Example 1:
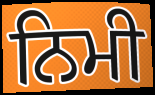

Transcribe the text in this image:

ਨਿਮੀ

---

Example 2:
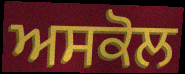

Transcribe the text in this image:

ਅਸਕੋਲ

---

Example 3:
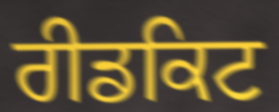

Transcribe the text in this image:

ਰੀਡਕਿਟ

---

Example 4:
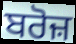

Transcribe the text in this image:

ਬਰੋਜ਼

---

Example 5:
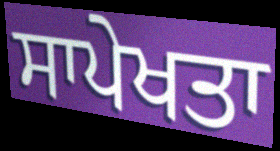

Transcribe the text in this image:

ਸਾਪੇਖਤਾ